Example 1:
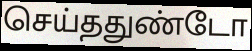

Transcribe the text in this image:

செய்ததுண்டோ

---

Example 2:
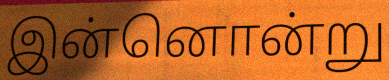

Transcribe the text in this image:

இன்னொன்று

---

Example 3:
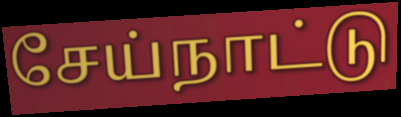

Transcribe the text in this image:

சேய்நாட்டு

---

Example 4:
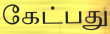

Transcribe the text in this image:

கேட்பது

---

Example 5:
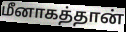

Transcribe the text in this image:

மீனாகத்தான்